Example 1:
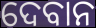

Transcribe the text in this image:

ଦେବାନ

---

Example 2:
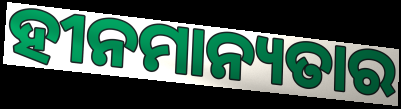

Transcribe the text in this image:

ହୀନମାନ୍ୟତାର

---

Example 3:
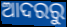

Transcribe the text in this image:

ଆଦରରୁ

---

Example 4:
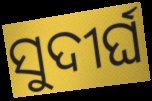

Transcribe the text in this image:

ସୁଦୀର୍ଘ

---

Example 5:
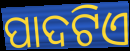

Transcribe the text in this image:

ପାଦଟିଏ